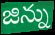
జిన్ను